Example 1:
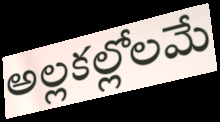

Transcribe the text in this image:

అల్లకల్లోలమే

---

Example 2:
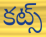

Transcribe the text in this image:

కట్స్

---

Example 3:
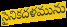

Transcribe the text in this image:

సైనికదళమును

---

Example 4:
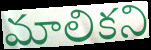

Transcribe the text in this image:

మాలికని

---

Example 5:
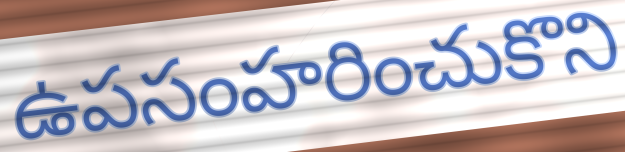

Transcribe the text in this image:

ఉపసంహరించుకొని